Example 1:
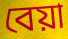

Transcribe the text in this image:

বেয়া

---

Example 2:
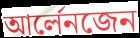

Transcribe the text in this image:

আৰ্লেনজেন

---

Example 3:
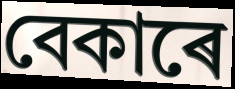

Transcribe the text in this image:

বেকাৰে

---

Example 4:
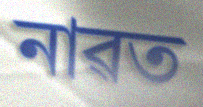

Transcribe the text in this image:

নাৱত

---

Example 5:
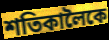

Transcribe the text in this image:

শতিকালৈকে